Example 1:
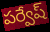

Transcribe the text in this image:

పర్వేష్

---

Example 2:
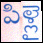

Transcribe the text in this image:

పిళ్లై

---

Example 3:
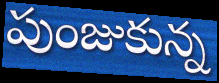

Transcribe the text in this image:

పుంజుకున్న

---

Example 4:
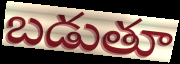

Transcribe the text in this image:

బడుతూ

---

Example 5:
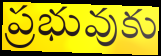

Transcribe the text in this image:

ప్రభువుకు